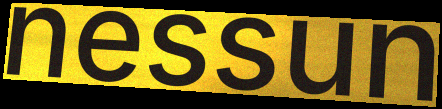
nessun